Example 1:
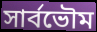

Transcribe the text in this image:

সার্বভৌম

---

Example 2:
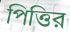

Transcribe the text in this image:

পিত্তির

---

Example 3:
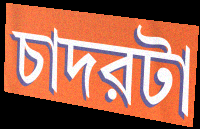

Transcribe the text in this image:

চাদরটা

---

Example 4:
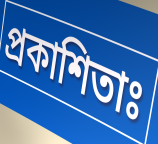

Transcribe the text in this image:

প্রকাশিতাঃ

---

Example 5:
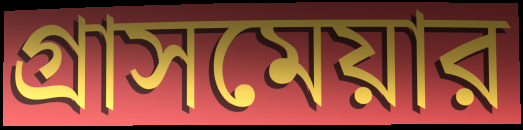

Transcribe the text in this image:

গ্রাসমেয়ার